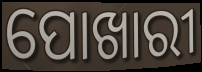
ପୋଖାରୀ